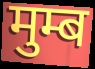
मुम्ब